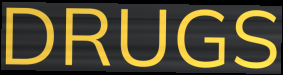
DRUGS